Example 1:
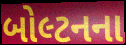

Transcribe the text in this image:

બોલ્ટનના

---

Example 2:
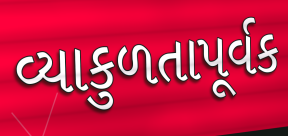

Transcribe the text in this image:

વ્યાકુળતાપૂર્વક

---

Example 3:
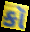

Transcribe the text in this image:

કૉ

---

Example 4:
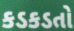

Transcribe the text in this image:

કડકડતો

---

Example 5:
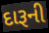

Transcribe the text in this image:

દારૂની